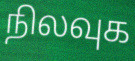
நிலவுக